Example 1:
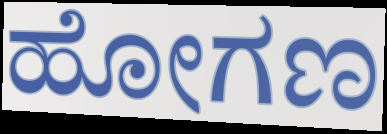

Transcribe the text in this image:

ಹೋಗಣ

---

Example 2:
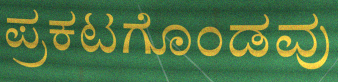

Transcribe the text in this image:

ಪ್ರಕಟಗೊಂಡವು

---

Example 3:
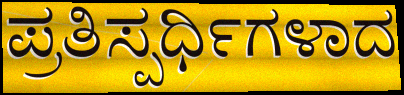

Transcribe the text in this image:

ಪ್ರತಿಸ್ಪರ್ಧಿಗಳಾದ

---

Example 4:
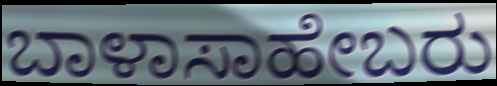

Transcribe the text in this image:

ಬಾಳಾಸಾಹೇಬರು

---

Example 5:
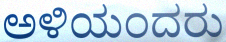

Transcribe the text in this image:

ಅಳಿಯಂದರು